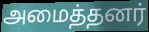
அமைத்தனர்